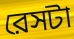
রেসটা